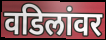
वडिलांवर